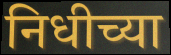
निधीच्या